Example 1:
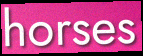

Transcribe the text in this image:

horses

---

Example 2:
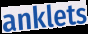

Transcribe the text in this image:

anklets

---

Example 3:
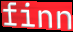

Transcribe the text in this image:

finn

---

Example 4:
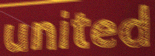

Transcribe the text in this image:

united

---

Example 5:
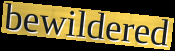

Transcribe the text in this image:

bewildered